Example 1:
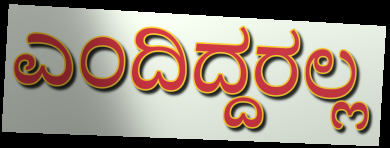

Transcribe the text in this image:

ಎಂದಿದ್ದರಲ್ಲ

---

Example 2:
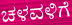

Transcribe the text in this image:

ಚಳವಳಿಗೆ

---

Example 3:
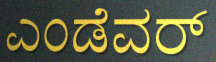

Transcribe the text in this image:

ಎಂಡೆವರ್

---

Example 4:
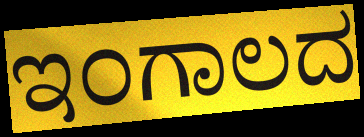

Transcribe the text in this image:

ಇಂಗಾಲದ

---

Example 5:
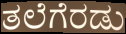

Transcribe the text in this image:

ತಲೆಗೆರಡು